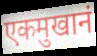
एकमुखानं